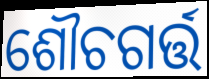
ଶୌଚଗର୍ତ୍ତ